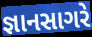
જ્ઞાનસાગરે